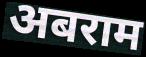
अबराम